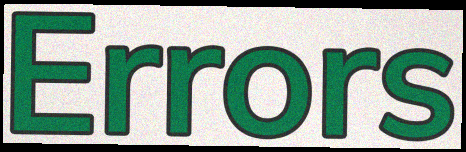
Errors